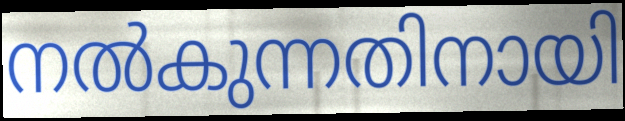
നൽകുന്നതിനായി